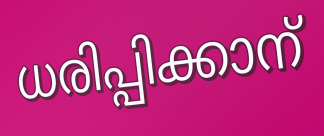
ധരിപ്പിക്കാന്